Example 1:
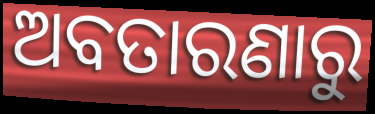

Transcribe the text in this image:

ଅବତାରଣାରୁ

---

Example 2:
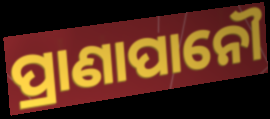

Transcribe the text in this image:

ପ୍ରାଣାପାନୌ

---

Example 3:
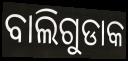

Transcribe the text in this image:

ବାଲିଗୁଡାକ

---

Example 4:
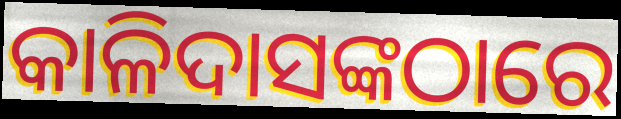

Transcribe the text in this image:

କାଳିଦାସଙ୍କଠାରେ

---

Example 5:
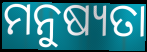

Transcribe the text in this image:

ମନୁଷ୍ୟତା